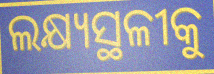
ଲକ୍ଷ୍ୟସ୍ଥଳୀକୁ